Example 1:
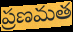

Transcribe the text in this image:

ప్రణమత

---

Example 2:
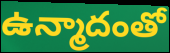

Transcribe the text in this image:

ఉన్మాదంతో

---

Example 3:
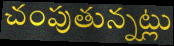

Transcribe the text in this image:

చంపుతున్నట్లు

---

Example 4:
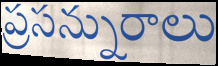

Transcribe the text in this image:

ప్రసన్నురాలు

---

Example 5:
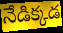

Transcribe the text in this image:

నేడిక్కడ